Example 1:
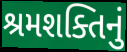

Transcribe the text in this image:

શ્રમશક્તિનું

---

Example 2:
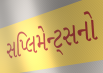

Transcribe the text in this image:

સપ્લિમેન્ટ્સનો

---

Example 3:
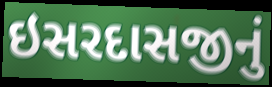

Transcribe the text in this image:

ઇસરદાસજીનું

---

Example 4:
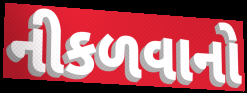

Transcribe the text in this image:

નીકળવાનો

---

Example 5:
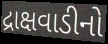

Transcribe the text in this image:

દ્રાક્ષવાડીનો